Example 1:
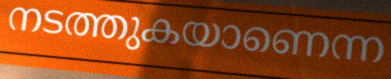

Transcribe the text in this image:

നടത്തുകയാണെന്ന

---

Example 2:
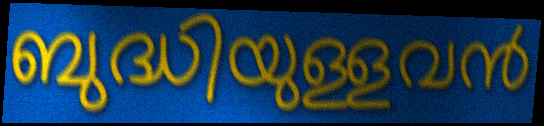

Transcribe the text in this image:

ബുദ്ധിയുള്ളവൻ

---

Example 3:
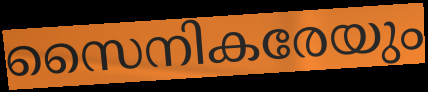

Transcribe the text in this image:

സൈനികരേയും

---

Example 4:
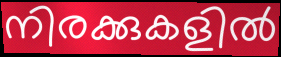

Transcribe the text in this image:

നിരക്കുകളിൽ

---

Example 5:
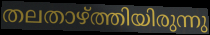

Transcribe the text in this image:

തലതാഴ്ത്തിയിരുന്നു